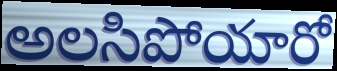
అలసిపోయారో